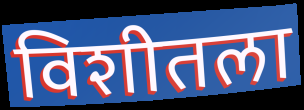
विशीतला